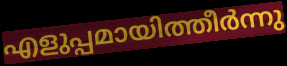
എളുപ്പമായിത്തീർന്നു